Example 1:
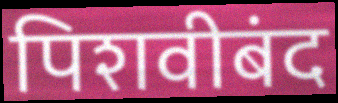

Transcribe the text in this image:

पिशवीबंद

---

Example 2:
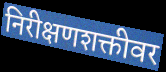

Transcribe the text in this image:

निरीक्षणशक्तीवर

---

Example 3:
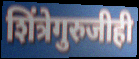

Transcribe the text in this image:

शिंत्रेगुरुजीही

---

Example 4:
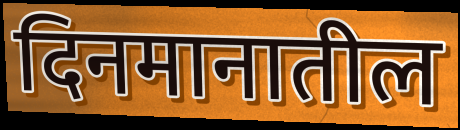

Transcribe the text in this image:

दिनमानातील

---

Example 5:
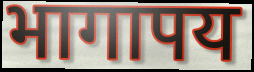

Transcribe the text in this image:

भागापय